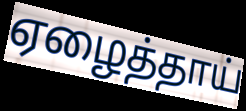
ஏழைத்தாய்